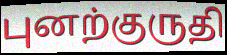
புனற்குருதி